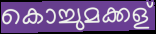
കൊച്ചുമക്കള്